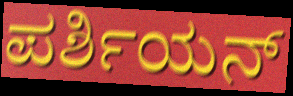
ಪರ್ಶಿಯನ್